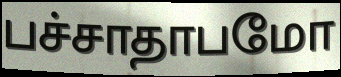
பச்சாதாபமோ